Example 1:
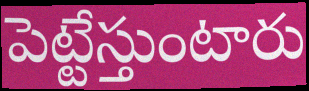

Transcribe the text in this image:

పెట్టేస్తుంటారు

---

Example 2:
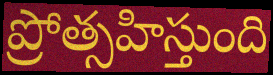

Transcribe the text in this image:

ప్రోత్సహిస్తుంది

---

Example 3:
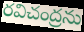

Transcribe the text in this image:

రవిచంద్రను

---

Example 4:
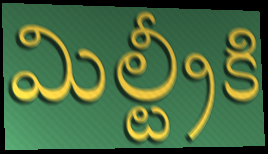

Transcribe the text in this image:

మిల్ట్రీకి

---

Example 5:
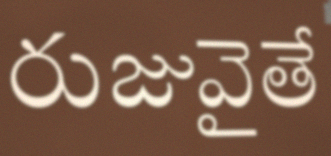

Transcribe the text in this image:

రుజువైతే